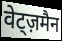
वेट्ज़मैन